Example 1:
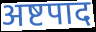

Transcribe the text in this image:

अष्टपाद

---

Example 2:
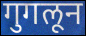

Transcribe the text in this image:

गुगलून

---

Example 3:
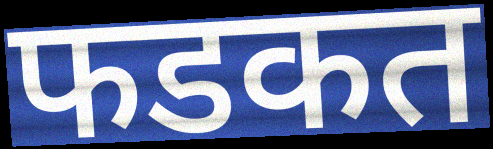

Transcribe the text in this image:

फडकत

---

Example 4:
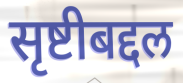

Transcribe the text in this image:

सृष्टीबद्दल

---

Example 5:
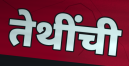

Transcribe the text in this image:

तेथींची